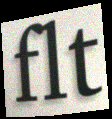
flt